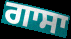
ਗਾਸਾ